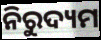
ନିରୁଦ୍ୟମ